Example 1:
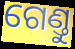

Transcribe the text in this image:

ଗେଣ୍ତୁ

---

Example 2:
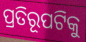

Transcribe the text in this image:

ପ୍ରତିରୂପଟିକୁ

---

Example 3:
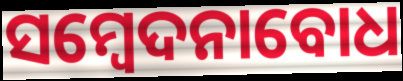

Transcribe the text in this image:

ସମ୍ବେଦନାବୋଧ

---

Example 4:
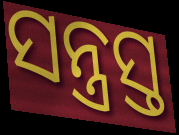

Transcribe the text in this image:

ସନ୍ତ୍ରସ୍ତ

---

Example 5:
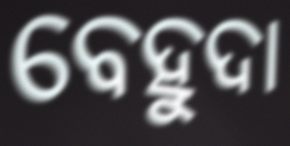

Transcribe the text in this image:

ବେହୁଦା